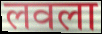
लवला